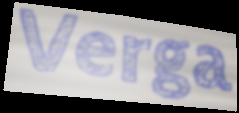
Verga